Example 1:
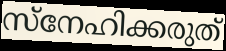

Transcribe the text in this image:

സ്നേഹിക്കരുത്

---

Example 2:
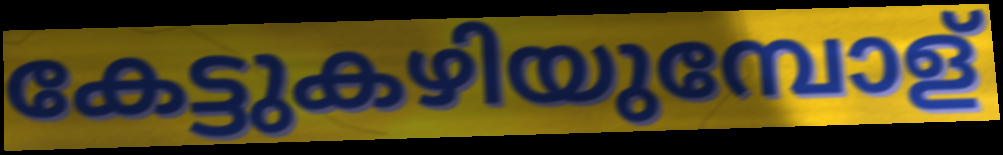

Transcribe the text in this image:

കേട്ടുകഴിയുമ്പോള്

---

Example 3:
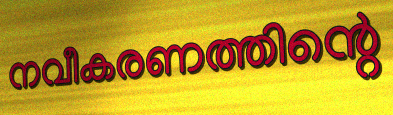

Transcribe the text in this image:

നവീകരണത്തിന്റെ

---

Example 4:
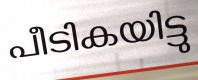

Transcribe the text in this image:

പീടികയിട്ടു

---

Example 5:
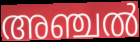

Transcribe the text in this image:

അഞ്ചൽ